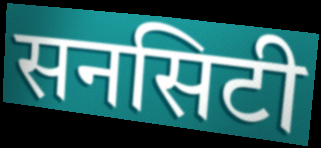
सनसिटी